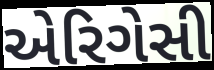
એરિગેસી